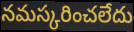
నమస్కరించలేదు